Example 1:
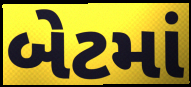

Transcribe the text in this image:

બેટમાં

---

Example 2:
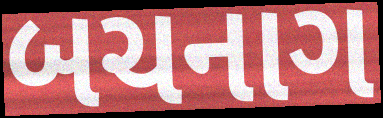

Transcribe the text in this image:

બચનાગ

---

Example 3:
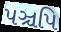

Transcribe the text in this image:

પઞ્ચપિ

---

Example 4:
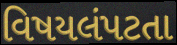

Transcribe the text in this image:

વિષયલંપટતા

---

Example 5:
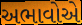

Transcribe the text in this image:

અભાવોએ